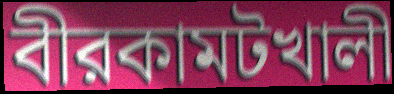
বীরকামটখালী